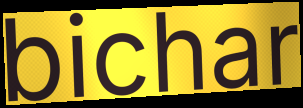
bichar